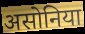
असोनिया